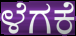
ಳೆಗಕೆ